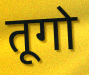
तूगो